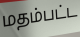
மதம்பட்ட